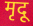
मृदू